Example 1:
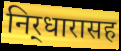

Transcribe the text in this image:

निर्धारासह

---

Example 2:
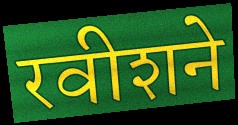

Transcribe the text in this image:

रवीशने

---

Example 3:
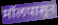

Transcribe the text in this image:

मॉलपासून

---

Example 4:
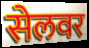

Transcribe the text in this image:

सेलवर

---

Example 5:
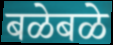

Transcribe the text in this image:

बळेबळे